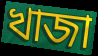
খাজা